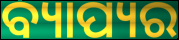
ବ୍ୟାପ୍ୟର